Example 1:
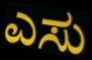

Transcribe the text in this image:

ಎಸು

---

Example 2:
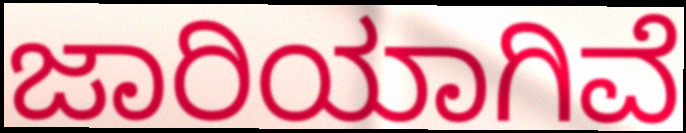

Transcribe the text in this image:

ಜಾರಿಯಾಗಿವೆ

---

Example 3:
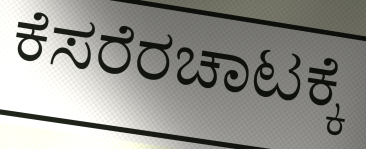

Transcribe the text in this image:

ಕೆಸರೆರಚಾಟಕ್ಕೆ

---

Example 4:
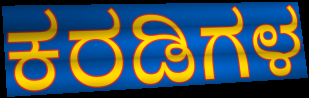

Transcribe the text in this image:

ಕರಡಿಗಳ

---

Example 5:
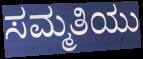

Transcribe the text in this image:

ಸಮ್ಮತಿಯು